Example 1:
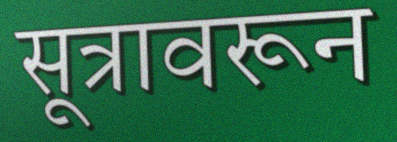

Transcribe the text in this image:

सूत्रावरून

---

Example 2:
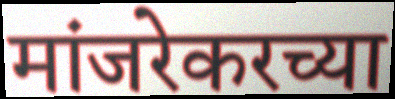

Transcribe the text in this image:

मांजरेकरच्या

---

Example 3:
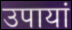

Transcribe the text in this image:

उपायां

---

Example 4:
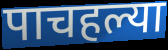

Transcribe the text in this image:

पाचहल्या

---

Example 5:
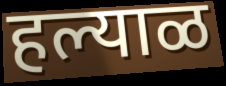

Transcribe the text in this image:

हल्याळ